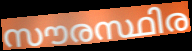
സൗരസ്ഥിര